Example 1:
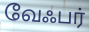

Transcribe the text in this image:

வேஃபர்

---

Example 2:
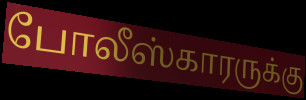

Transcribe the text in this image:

போலீஸ்காரருக்கு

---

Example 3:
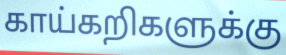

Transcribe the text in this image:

காய்கறிகளுக்கு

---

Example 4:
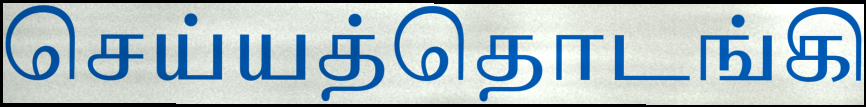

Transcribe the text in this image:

செய்யத்தொடங்கி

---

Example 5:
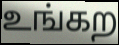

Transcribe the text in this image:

உங்கற